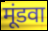
मूंडवा